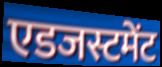
एडजस्टमेंट